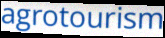
agrotourism